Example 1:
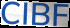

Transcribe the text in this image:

CIBF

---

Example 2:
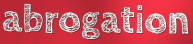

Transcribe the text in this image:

abrogation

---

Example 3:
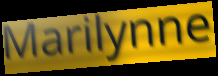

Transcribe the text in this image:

Marilynne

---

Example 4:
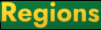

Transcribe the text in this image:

Regions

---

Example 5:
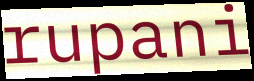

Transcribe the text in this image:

rupani